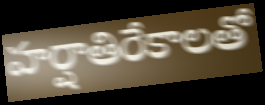
హర్షాతిరేకాలతో